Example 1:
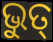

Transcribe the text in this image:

ଭୁତ୍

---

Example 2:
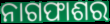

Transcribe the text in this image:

ନାଗଫାଶର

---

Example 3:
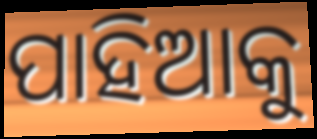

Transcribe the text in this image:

ପାହିଆକୁ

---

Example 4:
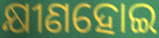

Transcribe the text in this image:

କ୍ଷୀଣହୋଇ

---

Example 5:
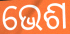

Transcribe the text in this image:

ଭେଶ